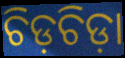
ଚିଡ଼ଚିଡ଼ା